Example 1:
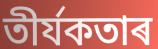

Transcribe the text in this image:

তীৰ্যকতাৰ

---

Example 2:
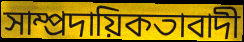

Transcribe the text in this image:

সাম্প্ৰদায়িকতাবাদী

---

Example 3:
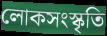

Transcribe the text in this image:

লোকসংস্কৃতি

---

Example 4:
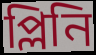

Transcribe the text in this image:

প্লিনি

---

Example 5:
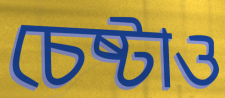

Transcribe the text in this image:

চেষ্টাও